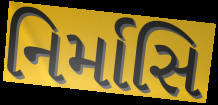
નિર્માસિ